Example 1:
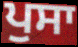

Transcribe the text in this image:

ਪੁਸਾ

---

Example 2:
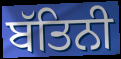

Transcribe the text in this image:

ਬੱਤਿਨੀ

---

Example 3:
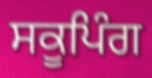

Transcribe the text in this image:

ਸਕੂਪਿੰਗ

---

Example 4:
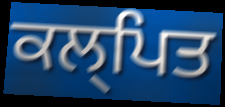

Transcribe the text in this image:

ਕਲ੍ਪਿਤ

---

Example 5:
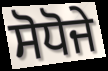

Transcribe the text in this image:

ਸੋਧੋਜੇ